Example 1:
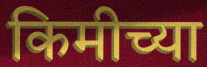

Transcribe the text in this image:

किमीच्या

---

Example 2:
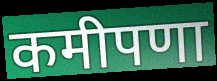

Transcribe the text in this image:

कमीपणा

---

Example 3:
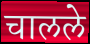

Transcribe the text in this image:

चालले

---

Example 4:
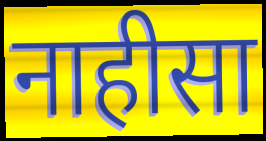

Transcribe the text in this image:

नाहीसा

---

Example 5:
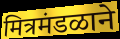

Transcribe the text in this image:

मित्रमंडळाने